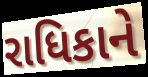
રાધિકાને